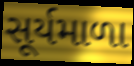
સૂર્યમાળા